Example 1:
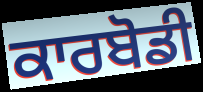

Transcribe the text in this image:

ਕਾਰਬੋਡੀ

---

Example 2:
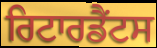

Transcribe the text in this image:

ਰਿਟਾਰਡੈਂਟਸ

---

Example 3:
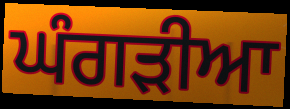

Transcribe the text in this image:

ਘੰਗੜੀਆ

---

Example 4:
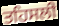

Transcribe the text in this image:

ਤਹਿਸਲੀ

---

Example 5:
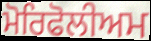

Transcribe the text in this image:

ਮੋਰਿਫੋਲੀਅਮ